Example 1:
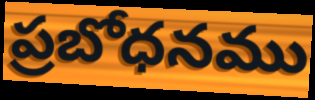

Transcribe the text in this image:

ప్రబోధనము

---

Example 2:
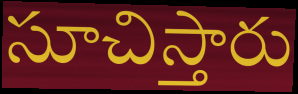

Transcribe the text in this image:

సూచిస్తారు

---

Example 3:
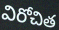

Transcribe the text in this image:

విరోచిత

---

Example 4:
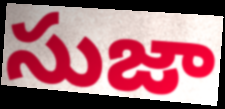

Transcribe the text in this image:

సుజా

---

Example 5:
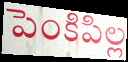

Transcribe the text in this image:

పెంకిపిల్ల